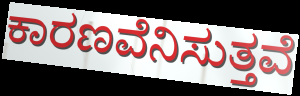
ಕಾರಣವೆನಿಸುತ್ತವೆ